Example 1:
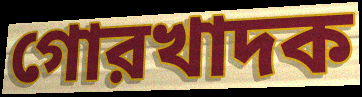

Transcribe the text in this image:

গোরখাদক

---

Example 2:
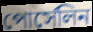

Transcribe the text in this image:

পোর্সেলিন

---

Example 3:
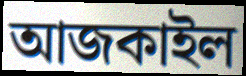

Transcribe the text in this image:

আজকাইল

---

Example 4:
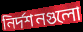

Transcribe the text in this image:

নির্দশনগুলো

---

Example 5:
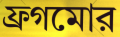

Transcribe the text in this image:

ফ্রগমোর